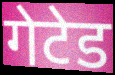
गेटेड